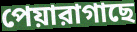
পেয়ারাগাছে